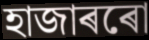
হাজাৰৰো